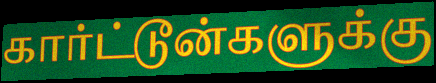
கார்ட்டூன்களுக்கு